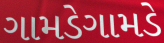
ગામડેગામડે